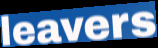
leavers